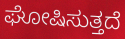
ಘೋಷಿಸುತ್ತದೆ